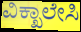
ವಿಕ್ಖಾಲೇಸಿ